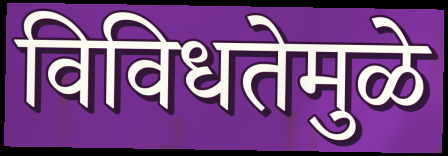
विविधतेमुळे